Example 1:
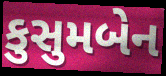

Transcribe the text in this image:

કુસુમબેન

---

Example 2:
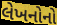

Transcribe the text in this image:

લેખનોનો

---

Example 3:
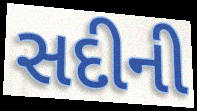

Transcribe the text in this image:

સદીની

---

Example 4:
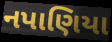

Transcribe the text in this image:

નપાણિયા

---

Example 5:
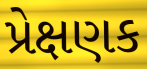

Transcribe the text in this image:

પ્રેક્ષણક